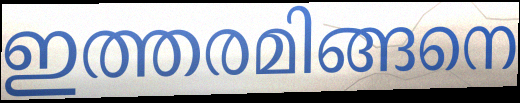
ഇത്തരമിങ്ങനെ